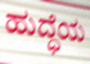
ಹುದ್ಧೆಯ